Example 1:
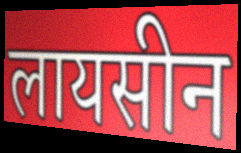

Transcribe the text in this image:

लायसीन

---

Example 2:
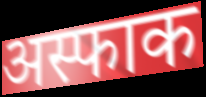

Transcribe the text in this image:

अस्फाक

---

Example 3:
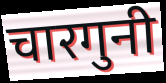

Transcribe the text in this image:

चारगुनी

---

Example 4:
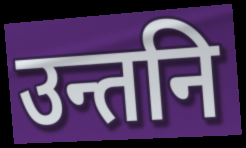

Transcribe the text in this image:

उन्तनि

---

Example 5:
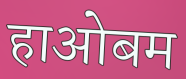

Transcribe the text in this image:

हाओबम